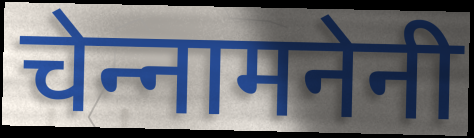
चेन्नामनेनी